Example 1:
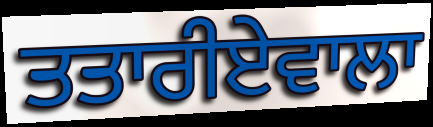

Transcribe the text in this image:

ਤਤਾਰੀਏਵਾਲਾ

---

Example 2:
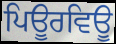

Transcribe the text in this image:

ਪਿਊਰਵਿਊ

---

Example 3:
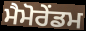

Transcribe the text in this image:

ਮੈਮੋਰੇਂਡਮ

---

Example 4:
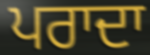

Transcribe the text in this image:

ਪਰਾਦਾ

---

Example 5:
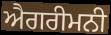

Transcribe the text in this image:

ਐਗਰੀਮਨੀ